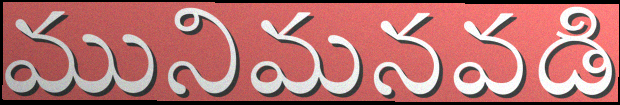
మునిమనవడి